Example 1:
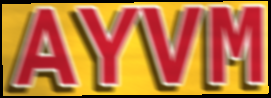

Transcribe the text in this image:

AYVM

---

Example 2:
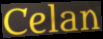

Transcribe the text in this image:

Celan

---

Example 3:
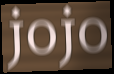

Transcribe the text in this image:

jojo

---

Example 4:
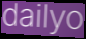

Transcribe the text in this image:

dailyo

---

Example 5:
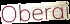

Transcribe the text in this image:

Oberai